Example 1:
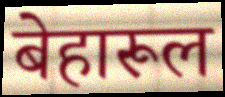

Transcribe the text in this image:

बेहारूल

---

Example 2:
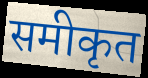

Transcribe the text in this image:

समीकृत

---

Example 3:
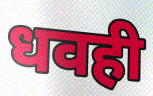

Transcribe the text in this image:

धवही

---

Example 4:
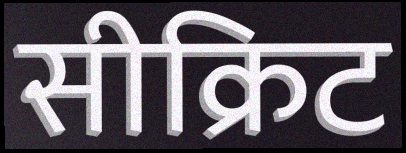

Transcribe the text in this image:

सीक्रिट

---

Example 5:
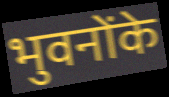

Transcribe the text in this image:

भुवनोंके